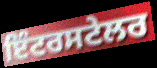
ਇੰਟਰਸਟੇਲਰ